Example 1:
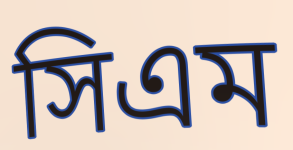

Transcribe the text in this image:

সিএম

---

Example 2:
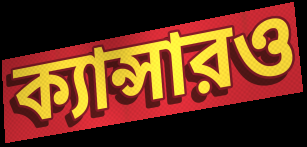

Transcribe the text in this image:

ক্যান্সারও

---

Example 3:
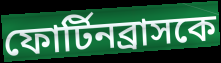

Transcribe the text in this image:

ফোর্টিনব্রাসকে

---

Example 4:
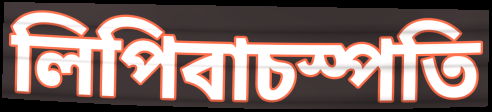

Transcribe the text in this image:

লিপিবাচস্পতি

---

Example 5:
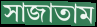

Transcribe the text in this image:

সাজাতাম